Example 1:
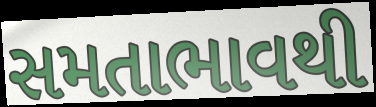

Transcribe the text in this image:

સમતાભાવથી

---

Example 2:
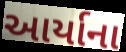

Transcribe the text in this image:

આર્યાના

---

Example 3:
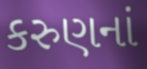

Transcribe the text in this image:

કરુણનાં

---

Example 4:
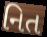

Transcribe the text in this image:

નિત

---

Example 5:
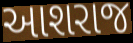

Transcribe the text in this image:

આશરાજ